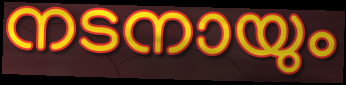
നടനായും